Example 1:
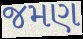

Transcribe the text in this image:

જમણ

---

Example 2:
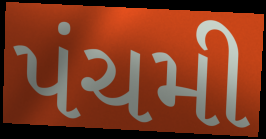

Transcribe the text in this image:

પંચમી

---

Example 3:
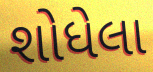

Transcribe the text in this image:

શોધેલા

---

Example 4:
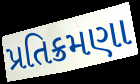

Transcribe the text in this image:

પ્રતિક્રમણા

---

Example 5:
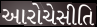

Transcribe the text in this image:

આરોચેસીતિ